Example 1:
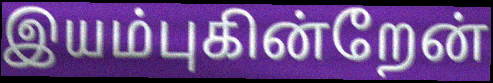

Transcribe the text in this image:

இயம்புகின்றேன்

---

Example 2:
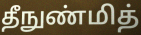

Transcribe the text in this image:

தீநுண்மித்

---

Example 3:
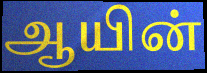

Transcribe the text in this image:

ஆயின்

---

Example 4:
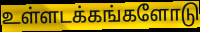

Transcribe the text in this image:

உள்ளடக்கங்களோடு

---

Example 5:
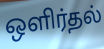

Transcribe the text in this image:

ஒளிர்தல்